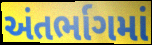
અંતર્ભાગમાં